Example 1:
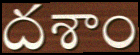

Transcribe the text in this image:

దశాం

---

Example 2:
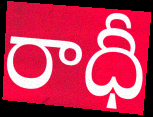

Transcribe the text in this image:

రాధీ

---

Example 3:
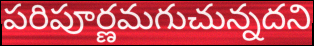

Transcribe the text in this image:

పరిపూర్ణమగుచున్నదని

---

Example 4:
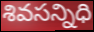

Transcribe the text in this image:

శివసన్నిధి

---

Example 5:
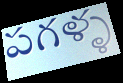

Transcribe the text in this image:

పగళ్ళ